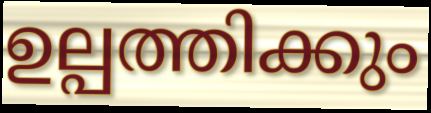
ഉല്പത്തിക്കും